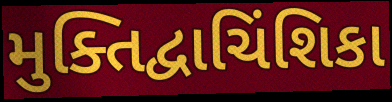
મુક્તિદ્વાચિંશિકા